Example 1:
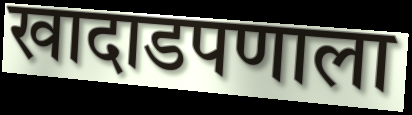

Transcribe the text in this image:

खादाडपणाला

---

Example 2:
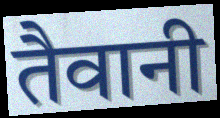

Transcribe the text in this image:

तैवानी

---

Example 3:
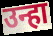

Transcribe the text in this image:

उन्हा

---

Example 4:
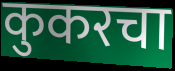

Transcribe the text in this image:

कुकरचा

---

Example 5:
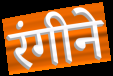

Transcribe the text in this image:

रंगीने